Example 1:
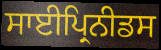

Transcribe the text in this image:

ਸਾਈਪ੍ਰਿਨੀਡਸ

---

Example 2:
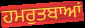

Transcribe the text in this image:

ਹਮਰੁਤਬਾਆਂ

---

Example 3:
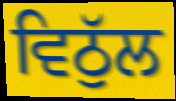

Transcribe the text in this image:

ਵਿਠੁੱਲ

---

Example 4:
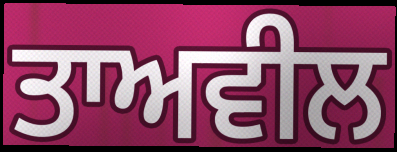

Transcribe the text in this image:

ਤਾਅਵੀਲ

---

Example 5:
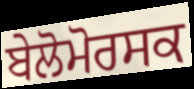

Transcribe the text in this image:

ਬੇਲੋਮੋਰਸਕ